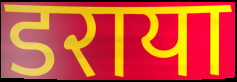
डराया